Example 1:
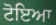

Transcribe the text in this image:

ਟੋਇਆ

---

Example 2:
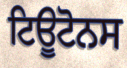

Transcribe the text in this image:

ਟਿਊਟੋਨਸ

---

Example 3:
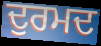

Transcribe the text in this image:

ਦੁਰਮਦ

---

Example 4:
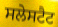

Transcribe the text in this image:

ਸਲੇਸਟੈਟ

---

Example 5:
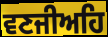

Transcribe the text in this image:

ਵਣਜੀਅਹਿ